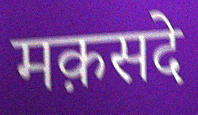
मक़सदे